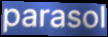
parasol